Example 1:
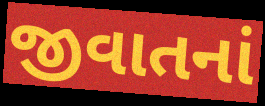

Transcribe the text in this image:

જીવાતનાં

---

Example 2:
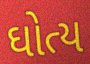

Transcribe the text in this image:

ઘોત્ય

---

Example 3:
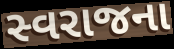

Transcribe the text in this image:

સ્વરાજના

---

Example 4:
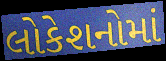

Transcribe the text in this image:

લોકેશનોમાં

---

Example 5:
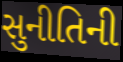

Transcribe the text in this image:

સુનીતિની